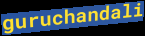
guruchandali